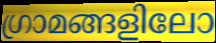
ഗ്രാമങ്ങളിലോ